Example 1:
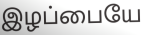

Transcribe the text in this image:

இழப்பையே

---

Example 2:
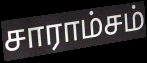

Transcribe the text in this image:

சாராம்சம்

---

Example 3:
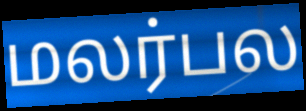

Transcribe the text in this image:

மலர்பல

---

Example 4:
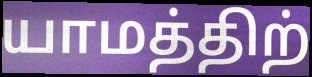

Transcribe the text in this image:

யாமத்திற்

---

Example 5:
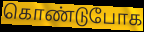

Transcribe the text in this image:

கொண்டுபோக